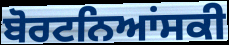
ਬੋਰਟਨਿਆਂਸਕੀ